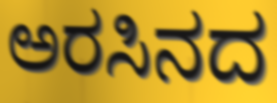
ಅರಸಿನದ